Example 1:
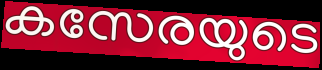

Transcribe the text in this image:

കസേരയുടെ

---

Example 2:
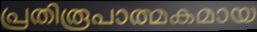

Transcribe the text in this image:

പ്രതിരൂപാത്മകമായ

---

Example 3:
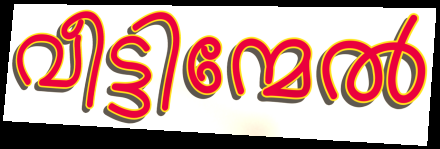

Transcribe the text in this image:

വീട്ടിന്മേൽ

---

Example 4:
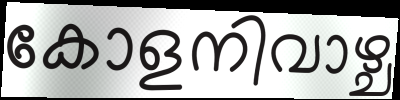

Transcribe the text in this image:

കോളനിവാഴ്ച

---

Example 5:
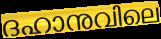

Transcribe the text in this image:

ദഹാനുവിലെ